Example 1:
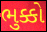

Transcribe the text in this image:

ભુક્કો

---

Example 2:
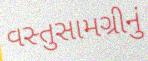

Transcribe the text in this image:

વસ્તુસામગ્રીનું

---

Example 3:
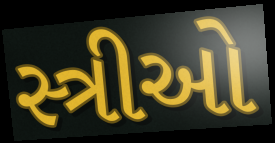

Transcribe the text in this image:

સ્‍ત્રીઓ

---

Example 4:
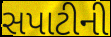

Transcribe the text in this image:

સપાટીની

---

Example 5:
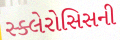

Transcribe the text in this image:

સ્ક્લેરોસિસની